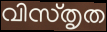
വിസ്തൃത